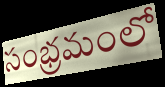
సంభ్రమంలో